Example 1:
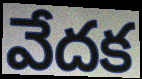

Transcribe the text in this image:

వేదక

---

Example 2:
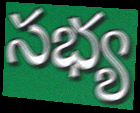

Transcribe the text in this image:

సభ్య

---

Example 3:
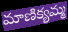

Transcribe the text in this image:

మాణిక్యమ్మ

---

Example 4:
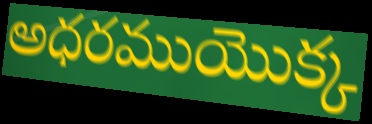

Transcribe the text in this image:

అధరముయొక్క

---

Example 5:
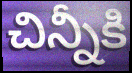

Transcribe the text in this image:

చిన్నీకి